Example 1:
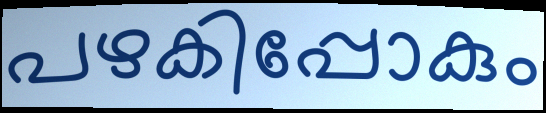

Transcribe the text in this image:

പഴകിപ്പോകും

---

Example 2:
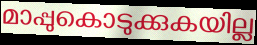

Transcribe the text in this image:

മാപ്പുകൊടുക്കുകയില്ല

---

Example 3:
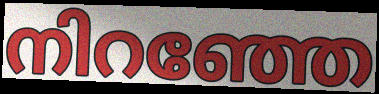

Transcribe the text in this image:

നിറഞ്ഞേ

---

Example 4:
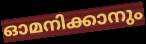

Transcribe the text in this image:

ഓമനിക്കാനും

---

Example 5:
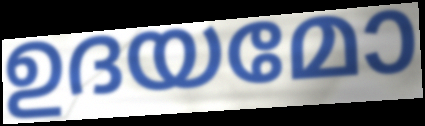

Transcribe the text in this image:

ഉദയമോ